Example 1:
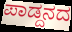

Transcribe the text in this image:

ಪಾಡ್ದನದ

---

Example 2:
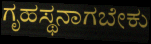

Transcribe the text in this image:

ಗೃಹಸ್ಥನಾಗಬೇಕು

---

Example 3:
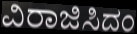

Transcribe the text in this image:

ವಿರಾಜಿಸಿದಂ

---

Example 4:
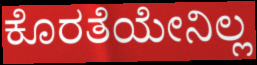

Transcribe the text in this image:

ಕೊರತೆಯೇನಿಲ್ಲ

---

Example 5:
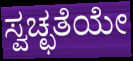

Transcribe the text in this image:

ಸ್ವಚ್ಛತೆಯೇ